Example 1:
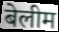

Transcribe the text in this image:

बेलीम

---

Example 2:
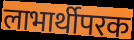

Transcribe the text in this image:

लाभार्थीपरक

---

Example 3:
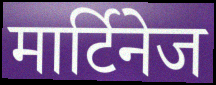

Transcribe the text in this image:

मार्टिनेज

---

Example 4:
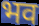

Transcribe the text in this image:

भव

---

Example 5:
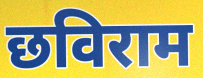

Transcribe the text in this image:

छविराम